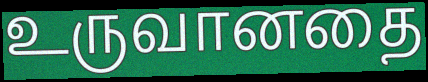
உருவானதை